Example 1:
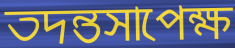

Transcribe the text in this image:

তদন্তসাপেক্ষ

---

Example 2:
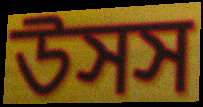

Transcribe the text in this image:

উসস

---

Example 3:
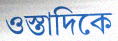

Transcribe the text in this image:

ওস্তাদিকে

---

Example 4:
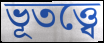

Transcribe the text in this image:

ভূতত্ত্বে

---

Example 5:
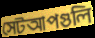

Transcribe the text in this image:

সেটআপগুলি